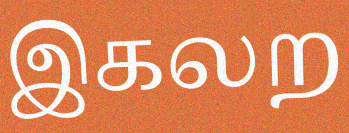
இகலற